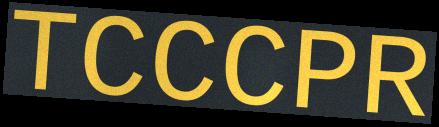
TCCCPR